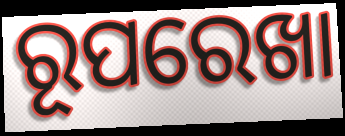
ରୂପରେଖା